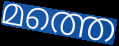
മത്തെ